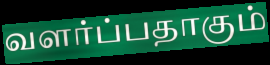
வளர்ப்பதாகும்